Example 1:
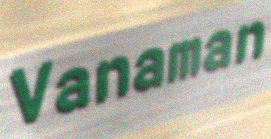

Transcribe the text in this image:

Vanaman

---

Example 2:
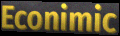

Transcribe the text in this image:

Econimic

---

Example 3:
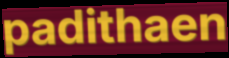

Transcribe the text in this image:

padithaen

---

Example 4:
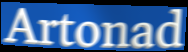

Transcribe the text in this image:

Artonad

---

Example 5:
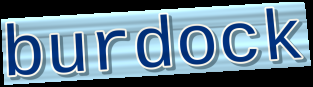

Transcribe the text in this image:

burdock